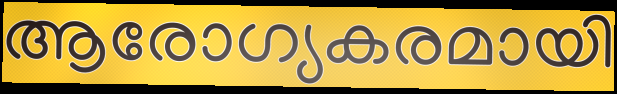
ആരോഗ്യകരമായി